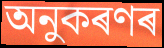
অনুকৰণৰ